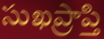
సుఖప్రాప్తి